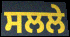
ਸਲਲੇ